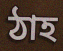
ঠাহ